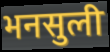
भनसुली